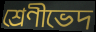
শ্রেণীভেদ